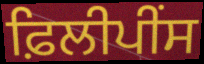
ਫ਼ਿਲੀਪੀਂਸ